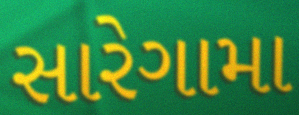
સારેગામા